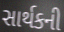
સાર્થકની